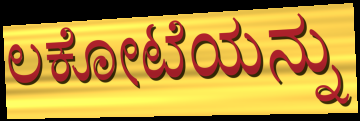
ಲಕೋಟೆಯನ್ನು